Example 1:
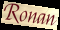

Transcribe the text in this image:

Ronan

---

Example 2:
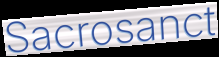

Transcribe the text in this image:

Sacrosanct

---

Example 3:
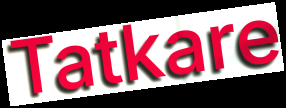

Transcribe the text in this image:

Tatkare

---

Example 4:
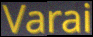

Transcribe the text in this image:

Varai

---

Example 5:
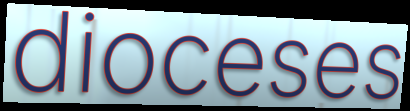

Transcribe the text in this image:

dioceses